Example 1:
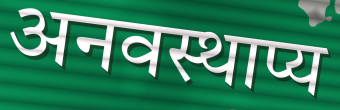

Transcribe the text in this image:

अनवस्थाप्य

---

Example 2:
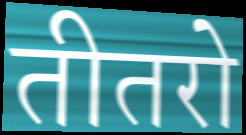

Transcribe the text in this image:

तीतरो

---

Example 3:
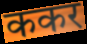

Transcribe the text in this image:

ककर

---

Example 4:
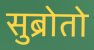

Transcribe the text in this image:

सुब्रोतो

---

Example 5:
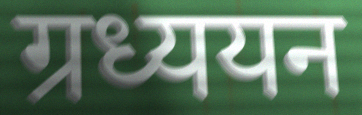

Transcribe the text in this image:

ग्रध्ययन